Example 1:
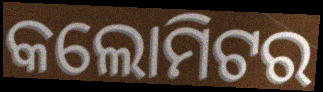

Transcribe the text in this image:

କଲୋମିଟର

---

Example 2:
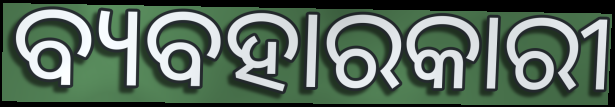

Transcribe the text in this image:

ବ୍ୟବହାରକାରୀ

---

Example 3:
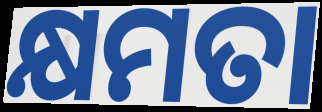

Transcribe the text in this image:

କ୍ଷମତା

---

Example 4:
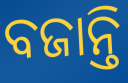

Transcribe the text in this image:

ବଜାନ୍ତି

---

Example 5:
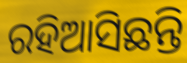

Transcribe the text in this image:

ରହିଆସିଛନ୍ତି